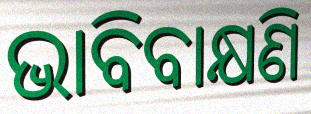
ଭାବିବାକ୍ଷଣି